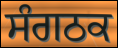
ਸੰਗਠਕ